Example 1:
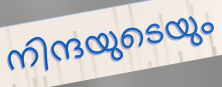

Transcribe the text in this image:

നിന്ദയുടെയും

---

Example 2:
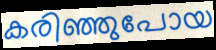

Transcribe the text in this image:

കരിഞ്ഞുപോയ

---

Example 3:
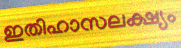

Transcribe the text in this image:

ഇതിഹാസലക്ഷ്യം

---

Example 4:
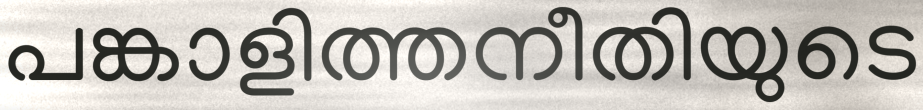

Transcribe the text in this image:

പങ്കാളിത്തനീതിയുടെ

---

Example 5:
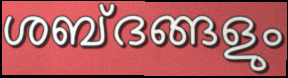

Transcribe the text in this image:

ശബ്ദങ്ങളും